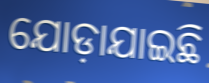
ଯୋଡ଼ାଯାଇଛି